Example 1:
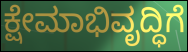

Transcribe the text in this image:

ಕ್ಷೇಮಾಭಿವೃದ್ಧಿಗೆ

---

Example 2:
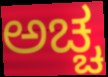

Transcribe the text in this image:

ಅಚ್ಚ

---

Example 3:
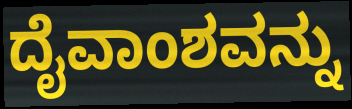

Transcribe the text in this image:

ದೈವಾಂಶವನ್ನು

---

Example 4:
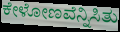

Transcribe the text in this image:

ಕೇಳೋಣವೆನ್ನಿಸಿತು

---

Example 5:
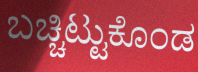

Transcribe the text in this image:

ಬಚ್ಚಿಟ್ಟುಕೊಂಡ